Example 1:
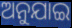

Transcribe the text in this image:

ଅନୁଯାଇ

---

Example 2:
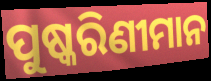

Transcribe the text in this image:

ପୁଷ୍କରିଣୀମାନ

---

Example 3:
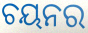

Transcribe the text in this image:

ଚୟନର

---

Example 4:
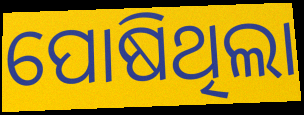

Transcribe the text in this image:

ପୋଷିଥିଲା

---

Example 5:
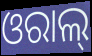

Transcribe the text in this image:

ଓରାଲ୍